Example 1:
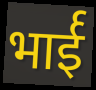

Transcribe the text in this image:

भार्ई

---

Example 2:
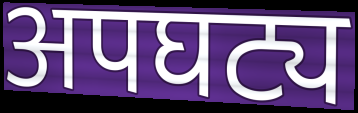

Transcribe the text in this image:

अपघट्य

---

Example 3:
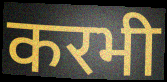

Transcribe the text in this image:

करभी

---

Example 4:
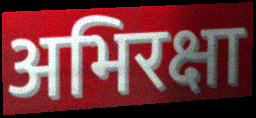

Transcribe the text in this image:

अभिरक्षा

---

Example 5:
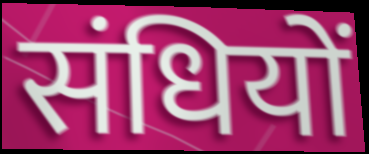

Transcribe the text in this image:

संधियों